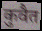
कुवैत